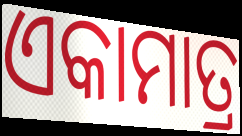
ଏକାମାତ୍ର